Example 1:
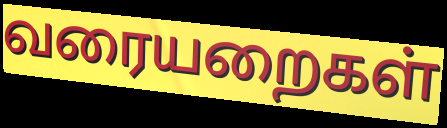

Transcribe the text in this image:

வரையறைகள்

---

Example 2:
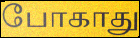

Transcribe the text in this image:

போகாது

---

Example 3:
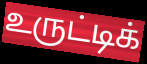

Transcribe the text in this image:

உருட்டிக்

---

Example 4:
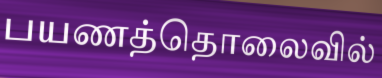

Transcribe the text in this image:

பயணத்தொலைவில்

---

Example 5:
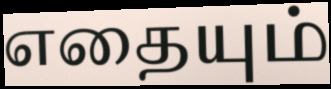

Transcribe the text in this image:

எதையும்